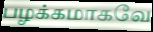
பழக்கமாகவே